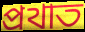
প্ৰথাত